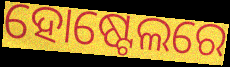
ହୋଷ୍ଟେଲରେ